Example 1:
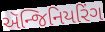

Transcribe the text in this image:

ઍન્જિનિયરિંગ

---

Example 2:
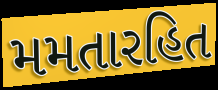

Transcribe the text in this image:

મમતારહિત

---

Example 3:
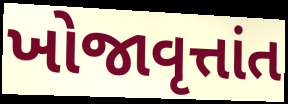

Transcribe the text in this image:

ખોજાવૃત્તાંત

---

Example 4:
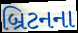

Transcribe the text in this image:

બ્રિટનના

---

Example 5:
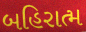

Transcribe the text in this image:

બહિરાત્મ